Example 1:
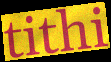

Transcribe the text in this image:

tithi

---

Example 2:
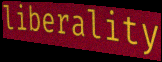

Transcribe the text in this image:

liberality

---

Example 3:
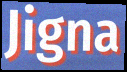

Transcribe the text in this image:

Jigna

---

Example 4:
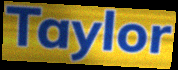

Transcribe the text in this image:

Taylor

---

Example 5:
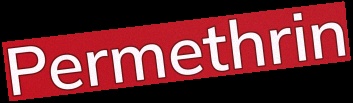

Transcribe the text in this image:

Permethrin